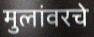
मुलांवरचे